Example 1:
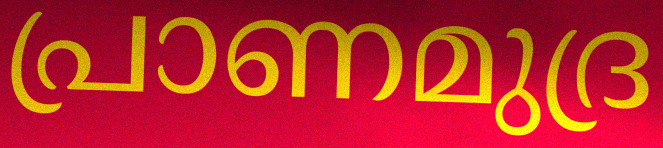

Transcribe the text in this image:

പ്രാണമുദ്ര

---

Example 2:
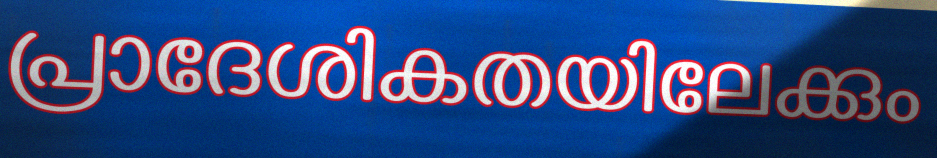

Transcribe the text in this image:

പ്രാദേശികതയിലേക്കും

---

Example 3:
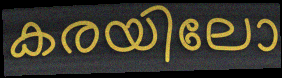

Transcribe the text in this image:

കരയിലോ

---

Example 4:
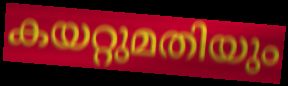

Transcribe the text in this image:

കയറ്റുമതിയും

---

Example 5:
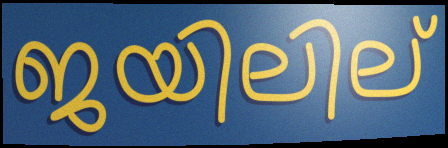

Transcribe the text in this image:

ജയിലില്